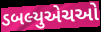
ડબલ્યુએચઓ